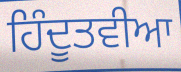
ਹਿੰਦੂਤਵੀਆ